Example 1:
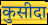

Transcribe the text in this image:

कुसीदा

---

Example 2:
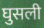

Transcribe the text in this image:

घुसली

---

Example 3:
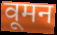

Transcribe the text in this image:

वूमन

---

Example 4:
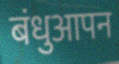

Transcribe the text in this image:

बंधुआपन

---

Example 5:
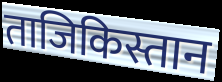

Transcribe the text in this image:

ताजिकिस्तान